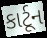
કાર્ટૂન